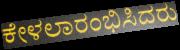
ಕೇಳಲಾರಂಭಿಸಿದರು